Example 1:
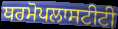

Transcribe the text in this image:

ਥਰਮੋਪਲਾਸਟੀਟੀ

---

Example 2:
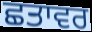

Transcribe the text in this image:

ਛਤਾਵਰ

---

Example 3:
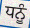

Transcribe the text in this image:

ਧਨੂੰ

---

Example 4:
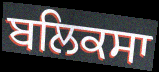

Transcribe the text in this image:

ਬਲਿਕਸਾ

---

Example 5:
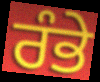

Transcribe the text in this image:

ਰੰਭੇ